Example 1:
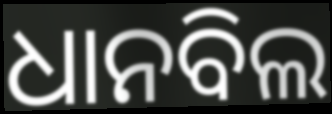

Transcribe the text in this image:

ଧାନବିଲ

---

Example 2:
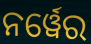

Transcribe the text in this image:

ନର୍ୱେର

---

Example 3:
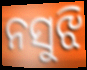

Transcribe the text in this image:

ନସୁଝି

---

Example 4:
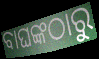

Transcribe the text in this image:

ବାଘଙ୍କଠାରୁ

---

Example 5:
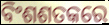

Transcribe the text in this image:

ବିଂଶଶତକରେ